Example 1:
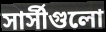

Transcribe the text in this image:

সার্সীগুলো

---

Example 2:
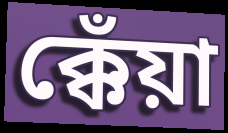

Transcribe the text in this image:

ক্কেঁয়া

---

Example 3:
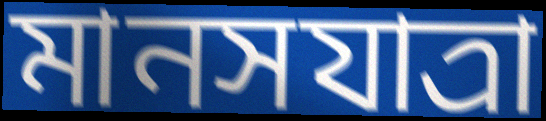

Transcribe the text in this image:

মানসযাত্রা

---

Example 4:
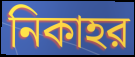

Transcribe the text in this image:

নিকাহর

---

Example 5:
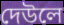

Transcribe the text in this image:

দেউলে